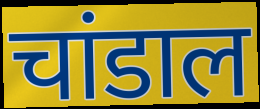
चांडाल